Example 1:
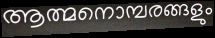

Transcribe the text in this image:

ആത്മനൊമ്പരങ്ങളും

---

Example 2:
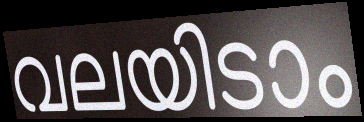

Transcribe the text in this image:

വലയിടാം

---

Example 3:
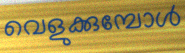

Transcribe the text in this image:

വെളുക്കുമ്പോൾ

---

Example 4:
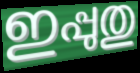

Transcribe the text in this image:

ഇപ്പുതു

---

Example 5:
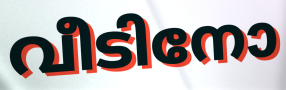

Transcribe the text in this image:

വീടിനോ